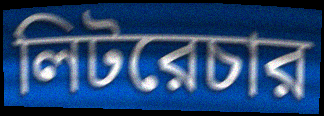
লিটরেচার